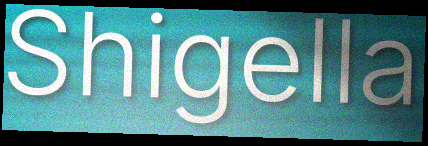
Shigella